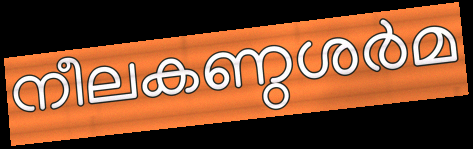
നീലകണ്ഠശർമ